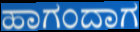
ಹಾಗಂದಾಗ